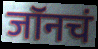
जॉनचं